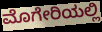
ಮೊಗೇರಿಯಲ್ಲಿ